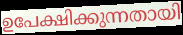
ഉപേക്ഷിക്കുന്നതായി